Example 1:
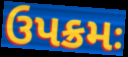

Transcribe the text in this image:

ઉપક્રમઃ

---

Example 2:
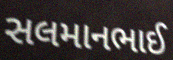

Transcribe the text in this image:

સલમાનભાઈ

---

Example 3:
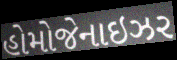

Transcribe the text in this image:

હોમોજેનાઇઝર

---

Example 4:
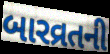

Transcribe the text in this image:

બારવ્રતની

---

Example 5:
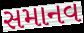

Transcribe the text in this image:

સમાનવ